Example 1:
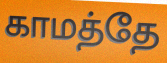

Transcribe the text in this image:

காமத்தே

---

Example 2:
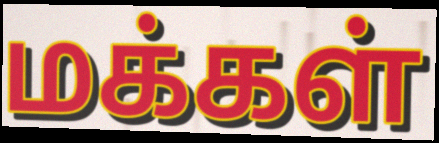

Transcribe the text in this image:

மக்கள்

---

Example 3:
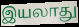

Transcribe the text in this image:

இயலாது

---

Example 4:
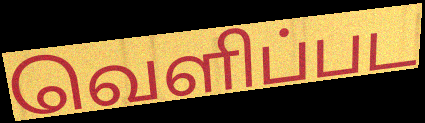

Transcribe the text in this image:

வெளிப்பட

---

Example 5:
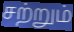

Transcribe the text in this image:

சற்றும்